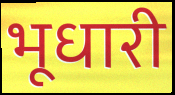
भूधारी